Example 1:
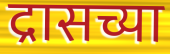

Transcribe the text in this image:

द्रासच्या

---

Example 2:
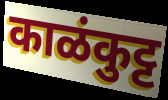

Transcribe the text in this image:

काळंकुट्ट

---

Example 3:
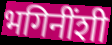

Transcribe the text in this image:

भगिनींशी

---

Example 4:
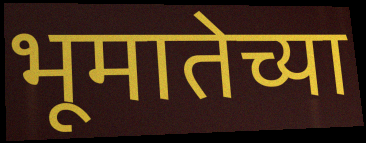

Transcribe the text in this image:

भूमातेच्या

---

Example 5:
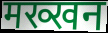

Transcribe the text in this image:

मख्खन